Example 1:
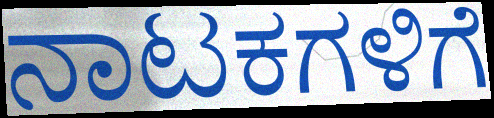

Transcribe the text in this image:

ನಾಟಕಗಳಿಗೆ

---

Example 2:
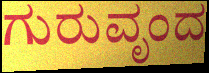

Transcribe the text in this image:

ಗುರುವೃಂದ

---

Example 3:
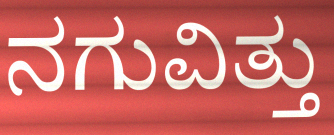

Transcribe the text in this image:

ನಗುವಿತ್ತು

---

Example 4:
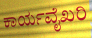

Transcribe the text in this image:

ಕಾರ್ಯವೈಖರಿ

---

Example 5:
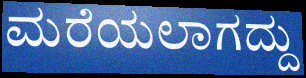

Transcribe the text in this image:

ಮರೆಯಲಾಗದ್ದು